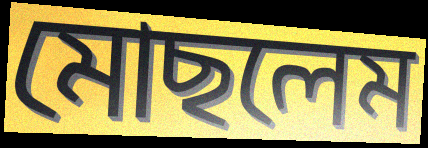
মোছলেম